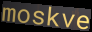
moskve